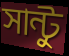
সান্টু